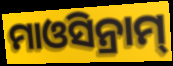
ମାଓସିନ୍ରାମ୍